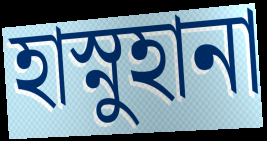
হাস্নুহানা